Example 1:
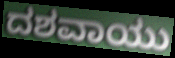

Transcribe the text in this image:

ದಶವಾಯು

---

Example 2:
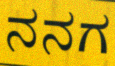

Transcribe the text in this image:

ನನಗ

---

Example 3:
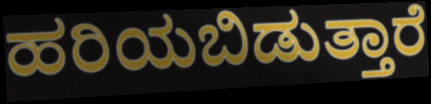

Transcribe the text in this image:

ಹರಿಯಬಿಡುತ್ತಾರೆ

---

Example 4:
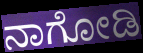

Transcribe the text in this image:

ನಾಗೋಡಿ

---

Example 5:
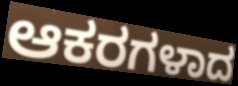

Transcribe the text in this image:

ಆಕರಗಳಾದ